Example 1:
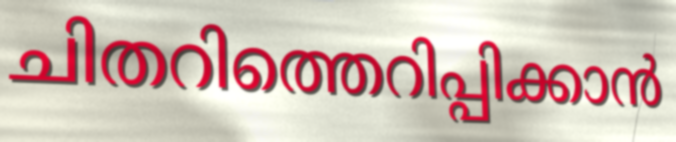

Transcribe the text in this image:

ചിതറിത്തെറിപ്പിക്കാൻ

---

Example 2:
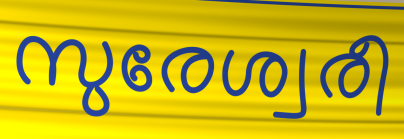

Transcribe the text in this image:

സുരേശ്വരീ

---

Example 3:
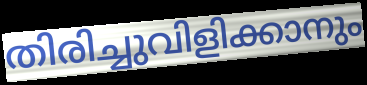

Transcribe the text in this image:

തിരിച്ചുവിളിക്കാനും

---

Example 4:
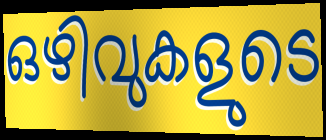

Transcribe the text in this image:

ഒഴിവുകളുടെ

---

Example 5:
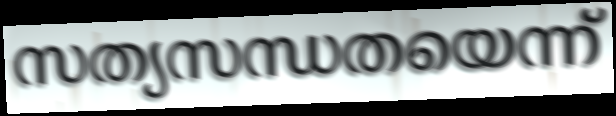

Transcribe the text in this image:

സത്യസന്ധതയെന്ന്